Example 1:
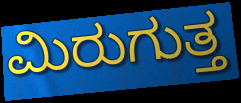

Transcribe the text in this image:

ಮಿರುಗುತ್ತ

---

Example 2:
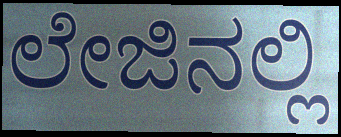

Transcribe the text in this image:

ಲೇಜಿನಲ್ಲಿ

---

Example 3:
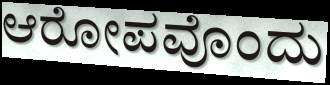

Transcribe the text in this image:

ಆರೋಪವೊಂದು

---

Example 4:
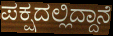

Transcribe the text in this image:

ಪಕ್ಷದಲ್ಲಿದ್ದಾನೆ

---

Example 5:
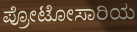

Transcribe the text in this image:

ಪ್ರೋಟೋಸಾರಿಯ